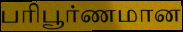
பரிபூர்ணமான